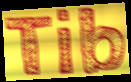
Tib